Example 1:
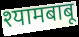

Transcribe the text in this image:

श्यामबाबू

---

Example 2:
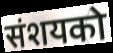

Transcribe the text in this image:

संशयको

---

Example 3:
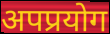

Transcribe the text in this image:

अपप्रयोग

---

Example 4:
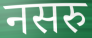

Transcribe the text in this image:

नसरु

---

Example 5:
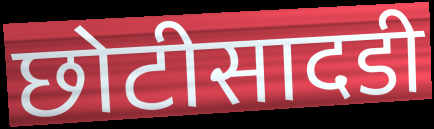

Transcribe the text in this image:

छोटीसादडी